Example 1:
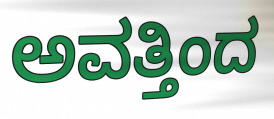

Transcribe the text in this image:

ಅವತ್ತಿಂದ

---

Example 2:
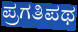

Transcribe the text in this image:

ಪ್ರಗತಿಪಥ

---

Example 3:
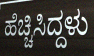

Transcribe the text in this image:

ಹೆಚ್ಚಿಸಿದ್ದಳು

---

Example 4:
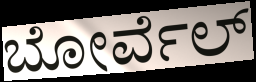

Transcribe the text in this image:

ಬೋರ್ವೆಲ್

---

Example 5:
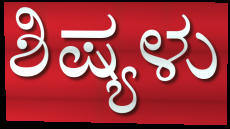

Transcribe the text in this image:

ಶಿಷ್ಯಳು